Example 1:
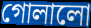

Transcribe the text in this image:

গোলালো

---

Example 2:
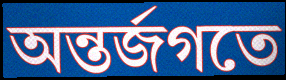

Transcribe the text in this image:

অন্তর্জগতে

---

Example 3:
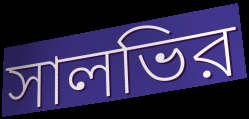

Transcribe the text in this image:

সালভির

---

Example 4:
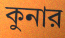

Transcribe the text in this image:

কুনার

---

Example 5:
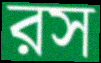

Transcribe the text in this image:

রস